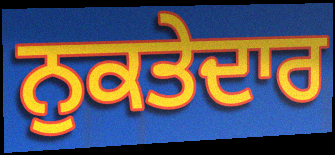
ਨੁਕਤੇਦਾਰ